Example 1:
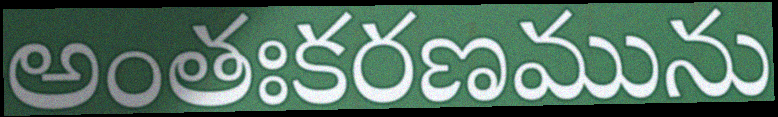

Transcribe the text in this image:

అంతఃకరణమును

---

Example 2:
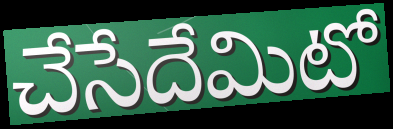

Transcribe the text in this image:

చేసేదేమిటో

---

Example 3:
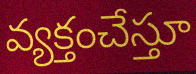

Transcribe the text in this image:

వ్యక్తంచేస్తూ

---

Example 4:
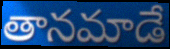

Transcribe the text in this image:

తానమాడే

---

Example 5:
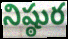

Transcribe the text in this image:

నిష్ఠుర